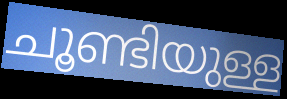
ചൂണ്ടിയുള്ള